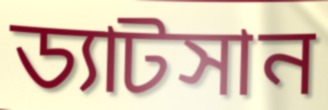
ড্যাটসান